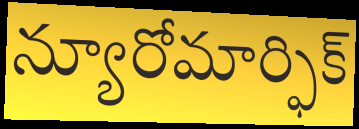
న్యూరోమార్ఫిక్